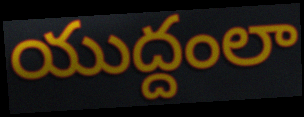
యుద్దంలా